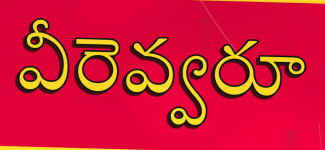
వీరెవ్వరూ